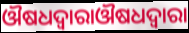
ଔଷଧଦ୍ଵାରାଔଷଧଦ୍ବାରା